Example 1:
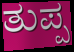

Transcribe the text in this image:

ತುಪ್ಪ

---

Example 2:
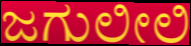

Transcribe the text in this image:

ಜಗುಲೀಲಿ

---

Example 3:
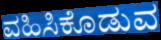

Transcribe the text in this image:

ವಹಿಸಿಕೊಡುವ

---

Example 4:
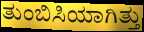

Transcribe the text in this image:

ತುಂಬಿಸಿಯಾಗಿತ್ತು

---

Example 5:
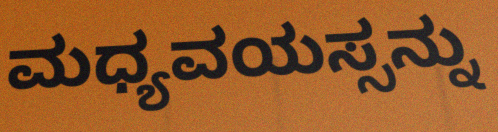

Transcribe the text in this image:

ಮಧ್ಯವಯಸ್ಸನ್ನು